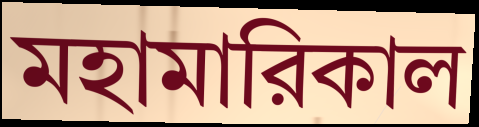
মহামারিকাল